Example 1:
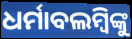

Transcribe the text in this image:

ଧର୍ମାବଲମ୍ବିଙ୍କୁ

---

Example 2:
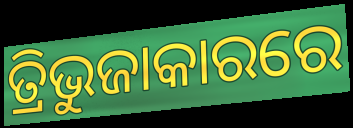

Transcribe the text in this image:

ତ୍ରିଭୁଜାକାରରେ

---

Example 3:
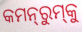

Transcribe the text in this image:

କମନ୍‍ରୁମ୍‍କୁ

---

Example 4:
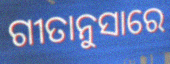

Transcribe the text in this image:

ଗୀତାନୁସାରେ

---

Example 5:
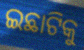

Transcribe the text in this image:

ଇଛାଟିକୁ